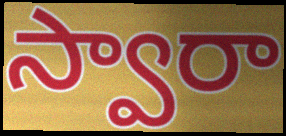
స్వారా